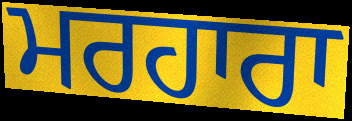
ਮਰਹਾਰਾ